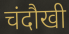
चंदौखी